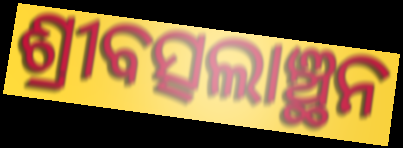
ଶ୍ରୀବତ୍ସଲାଞ୍ଛନ